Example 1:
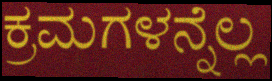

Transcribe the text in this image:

ಕ್ರಮಗಳನ್ನೆಲ್ಲ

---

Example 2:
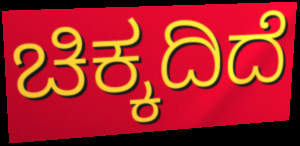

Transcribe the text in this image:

ಚಿಕ್ಕದಿದೆ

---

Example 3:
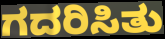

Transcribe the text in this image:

ಗದರಿಸಿತು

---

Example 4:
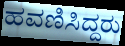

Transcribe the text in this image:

ಹವಣಿಸಿದ್ದರು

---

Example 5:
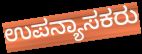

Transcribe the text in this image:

ಉಪನ್ಯಾಸಕರು